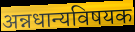
अन्नधान्यविषयक